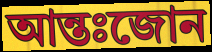
আন্তঃজোন